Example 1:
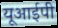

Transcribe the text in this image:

यूआईपी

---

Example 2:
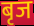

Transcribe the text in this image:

बृज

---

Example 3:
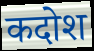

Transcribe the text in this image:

कदोश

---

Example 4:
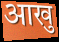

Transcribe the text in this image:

आखु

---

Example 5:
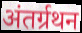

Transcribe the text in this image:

अंतर्ग्रथन